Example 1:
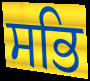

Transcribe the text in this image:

ਸਭਿ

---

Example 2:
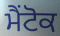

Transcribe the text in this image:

ਮੈਂਟੋਕ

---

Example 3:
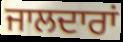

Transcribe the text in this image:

ਜਾਲਦਾਰਾਂ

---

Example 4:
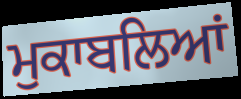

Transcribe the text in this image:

ਮੁਕਾਬਲਿਆਂ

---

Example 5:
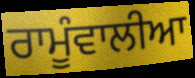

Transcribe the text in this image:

ਰਾਮੂੰਵਾਲੀਆ